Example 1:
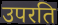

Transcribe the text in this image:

उपरति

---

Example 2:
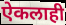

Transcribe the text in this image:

ऐकलाही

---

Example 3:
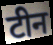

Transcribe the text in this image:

टीन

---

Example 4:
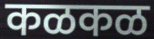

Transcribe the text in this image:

कळकळ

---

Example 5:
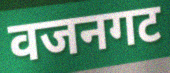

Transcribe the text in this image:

वजनगट